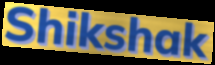
Shikshak